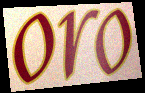
oro